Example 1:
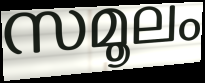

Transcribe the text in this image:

സമൂലം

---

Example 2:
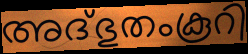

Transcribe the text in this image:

അദ്ഭുതംകൂറി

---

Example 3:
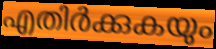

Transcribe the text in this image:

എതിർക്കുകയും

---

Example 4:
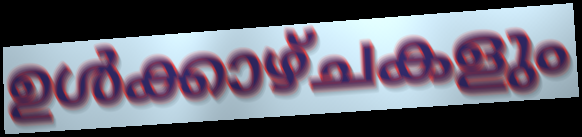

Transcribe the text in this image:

ഉൾക്കാഴ്ചകളും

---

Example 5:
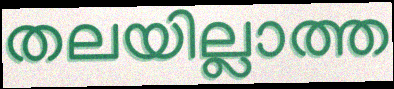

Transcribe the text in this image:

തലയില്ലാത്ത